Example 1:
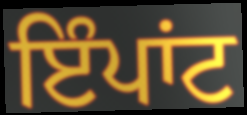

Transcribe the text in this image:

ਇੰਪਾਂਟ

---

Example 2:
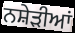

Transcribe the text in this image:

ਨਸ਼ੇੜੀਆਂ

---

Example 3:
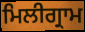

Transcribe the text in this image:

ਮਿਲੀਗ੍ਰਾਮ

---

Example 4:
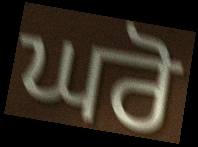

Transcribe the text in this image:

ਘਰੋ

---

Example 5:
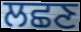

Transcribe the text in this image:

ਲਛਣ